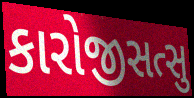
કારોજીસત્સુ